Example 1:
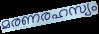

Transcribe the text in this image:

മരണരഹസ്യം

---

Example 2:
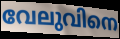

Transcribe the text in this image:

വേലുവിനെ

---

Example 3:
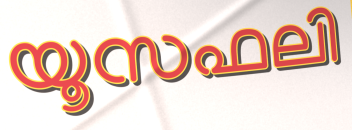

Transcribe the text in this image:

യൂസഫലി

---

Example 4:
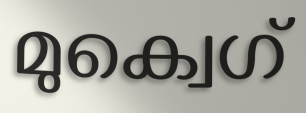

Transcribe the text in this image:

മുക്വെഗ്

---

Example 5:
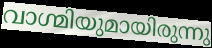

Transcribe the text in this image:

വാഗ്മിയുമായിരുന്നു